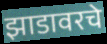
झाडावरचे